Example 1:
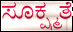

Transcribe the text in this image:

ಸೂಕ್ಷ್ಮತೆ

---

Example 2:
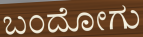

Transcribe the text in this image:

ಬಂದೋಗು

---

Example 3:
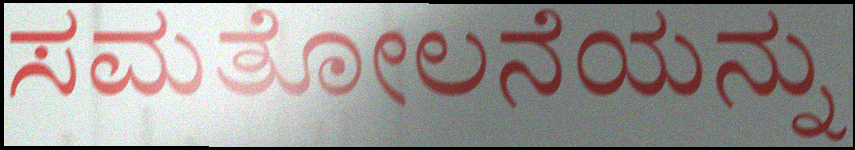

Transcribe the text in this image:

ಸಮತೋಲನೆಯನ್ನು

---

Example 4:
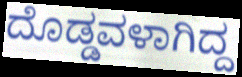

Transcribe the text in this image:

ದೊಡ್ಡವಳಾಗಿದ್ದ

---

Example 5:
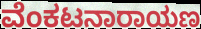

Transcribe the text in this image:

ವೆಂಕಟನಾರಾಯಣ